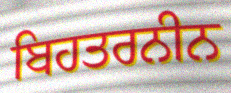
ਬਿਹਤਰਨੀਨ